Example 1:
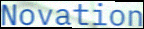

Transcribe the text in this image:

Novation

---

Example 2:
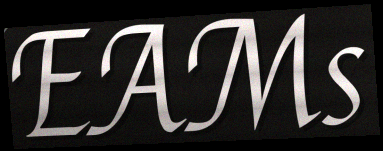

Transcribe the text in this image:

EAMs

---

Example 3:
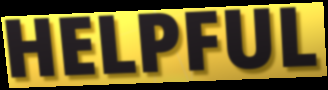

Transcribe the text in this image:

HELPFUL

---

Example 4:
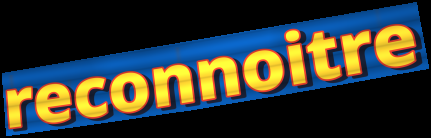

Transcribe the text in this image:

reconnoitre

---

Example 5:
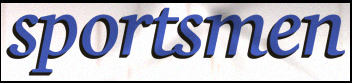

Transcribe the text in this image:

sportsmen